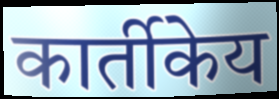
कार्तीकेय